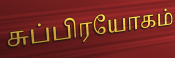
சுப்பிரயோகம்